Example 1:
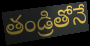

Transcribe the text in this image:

తండ్రితోనే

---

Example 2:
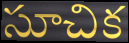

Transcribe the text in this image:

సూచిక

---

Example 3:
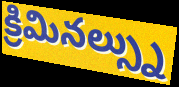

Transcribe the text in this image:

క్రిమినల్స్ను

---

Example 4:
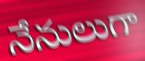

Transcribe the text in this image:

నేనులుగా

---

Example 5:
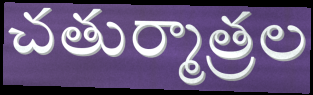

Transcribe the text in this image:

చతుర్మాత్రల